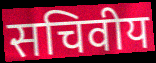
सचिवीय